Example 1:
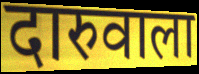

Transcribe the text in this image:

दारुवाला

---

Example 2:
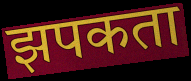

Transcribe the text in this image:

झपकता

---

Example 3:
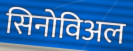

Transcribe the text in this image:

सिनोविअल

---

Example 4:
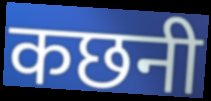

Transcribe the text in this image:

कछनी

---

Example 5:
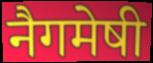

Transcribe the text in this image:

नैगमेषी